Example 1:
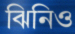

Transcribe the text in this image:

ঝিনিও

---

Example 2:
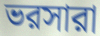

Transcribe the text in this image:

ভরসারা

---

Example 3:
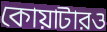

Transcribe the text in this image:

কোয়াটারও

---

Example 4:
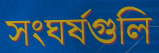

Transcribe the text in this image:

সংঘর্ষগুলি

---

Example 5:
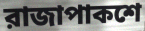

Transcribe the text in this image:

রাজাপাকশে